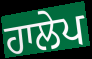
ਹਾਲੇਪ